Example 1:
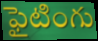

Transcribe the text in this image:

ఫైటింగు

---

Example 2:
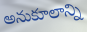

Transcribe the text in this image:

అనుకూలాన్ని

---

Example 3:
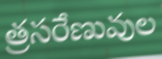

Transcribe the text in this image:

త్రసరేణువుల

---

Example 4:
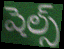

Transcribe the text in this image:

షెల్స్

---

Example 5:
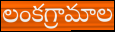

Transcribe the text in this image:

లంకగ్రామాల